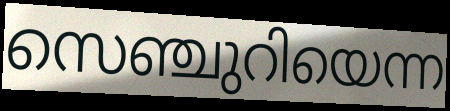
സെഞ്ചുറിയെന്ന